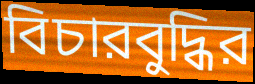
বিচারবুদ্ধির